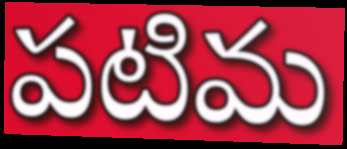
పటిమ